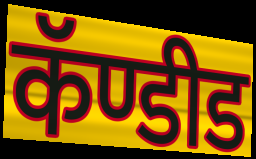
कॅण्डीड